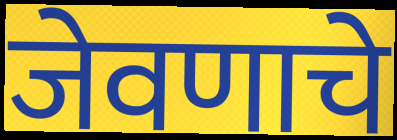
जेवणाचे